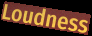
Loudness